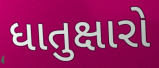
ધાતુક્ષારો